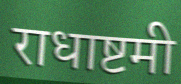
राधाष्टमी